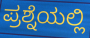
ಪ್ರಶ್ನೆಯಲ್ಲಿ